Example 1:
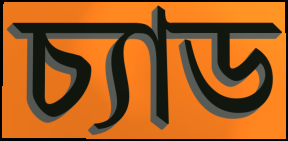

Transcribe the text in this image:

চ্যাড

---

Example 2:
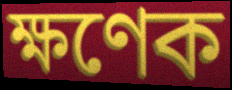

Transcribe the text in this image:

ক্ষণেক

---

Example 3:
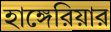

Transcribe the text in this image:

হাঙ্গেরিয়ার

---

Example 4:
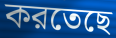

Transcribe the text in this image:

করতেছে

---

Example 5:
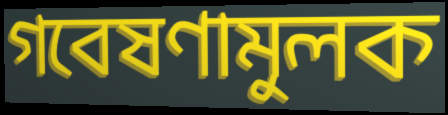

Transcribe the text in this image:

গবেষণামুলক